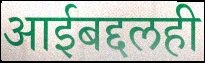
आईबद्दलही